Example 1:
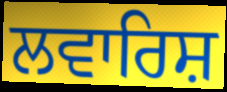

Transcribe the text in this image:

ਲਵਾਰਿਸ਼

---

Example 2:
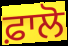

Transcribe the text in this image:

ਫ਼ਾਲੋ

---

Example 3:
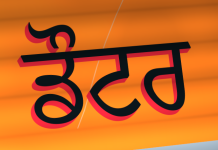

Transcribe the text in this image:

ਡੌਟਰ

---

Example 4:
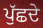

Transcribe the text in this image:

ਪੁੱਛਦੇ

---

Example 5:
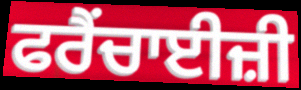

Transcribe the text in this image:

ਫਰੈਂਚਾਈਜ਼ੀ